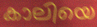
കാലിയെ